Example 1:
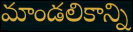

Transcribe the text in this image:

మాండలికాన్ని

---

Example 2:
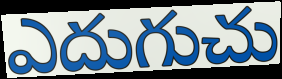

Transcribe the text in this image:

ఎదుగుచు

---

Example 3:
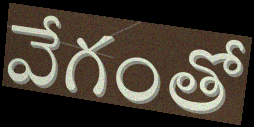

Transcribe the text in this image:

వేగంతో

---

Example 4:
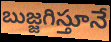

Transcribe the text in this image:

బుజ్జగిస్తూనే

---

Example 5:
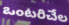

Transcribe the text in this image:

ఒంటరిచేల